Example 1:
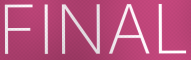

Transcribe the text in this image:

FINAL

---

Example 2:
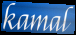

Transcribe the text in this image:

kamal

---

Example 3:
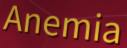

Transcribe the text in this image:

Anemia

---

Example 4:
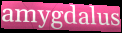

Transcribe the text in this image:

amygdalus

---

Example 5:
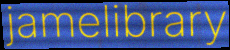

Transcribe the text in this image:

jamelibrary